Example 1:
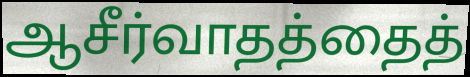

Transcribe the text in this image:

ஆசீர்வாதத்தைத்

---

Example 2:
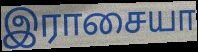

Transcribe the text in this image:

இராசையா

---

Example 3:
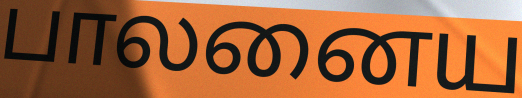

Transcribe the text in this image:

பாலனைய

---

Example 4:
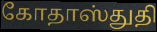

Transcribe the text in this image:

கோதாஸ்துதி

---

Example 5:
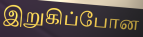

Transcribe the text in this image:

இறுகிப்போன